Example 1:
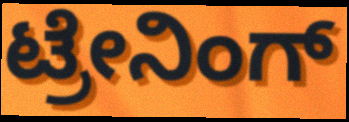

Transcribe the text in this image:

ಟ್ರೇನಿಂಗ್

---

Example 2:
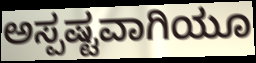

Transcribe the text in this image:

ಅಸ್ಪಷ್ಟವಾಗಿಯೂ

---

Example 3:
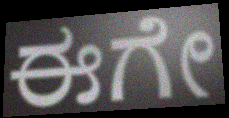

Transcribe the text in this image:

ಈಗೇ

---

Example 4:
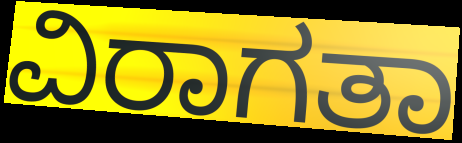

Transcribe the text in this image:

ವಿರಾಗತಾ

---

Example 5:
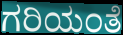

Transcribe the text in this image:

ಗರಿಯಂತೆ